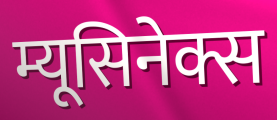
म्यूसिनेक्स